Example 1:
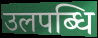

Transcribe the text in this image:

उलपब्धि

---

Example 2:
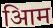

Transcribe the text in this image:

आिम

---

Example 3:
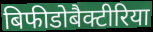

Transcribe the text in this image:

बिफीडोबैक्टीरिया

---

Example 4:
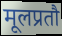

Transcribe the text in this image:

मूलप्रतौ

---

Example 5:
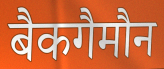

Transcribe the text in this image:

बैकगैमौन